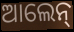
ଆଲେନ୍